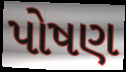
પોષણ